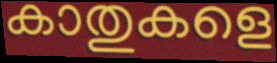
കാതുകളെ